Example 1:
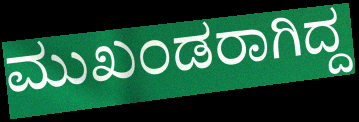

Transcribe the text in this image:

ಮುಖಂಡರಾಗಿದ್ದ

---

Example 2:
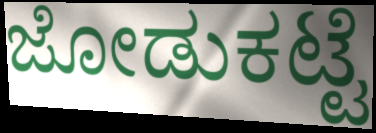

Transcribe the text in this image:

ಜೋಡುಕಟ್ಟೆ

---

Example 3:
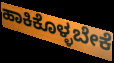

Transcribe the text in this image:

ಹಾಕಿಕೊಳ್ಳಬೇಕೆ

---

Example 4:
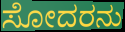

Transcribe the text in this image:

ಸೋದರನು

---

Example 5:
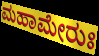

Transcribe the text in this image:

ಮಹಾಮೇರುಃ